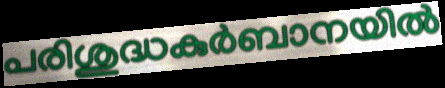
പരിശുദ്ധകുർബാനയിൽ